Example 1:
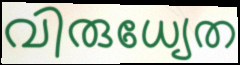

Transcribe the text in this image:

വിരുധ്യേത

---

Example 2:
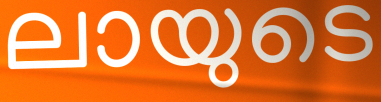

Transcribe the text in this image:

ലായുടെ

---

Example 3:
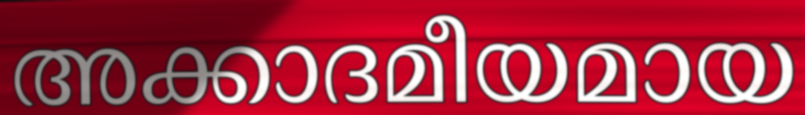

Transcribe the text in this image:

അക്കാദമീയമായ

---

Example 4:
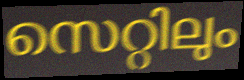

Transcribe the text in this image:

സെറ്റിലും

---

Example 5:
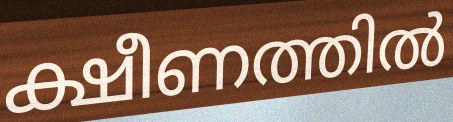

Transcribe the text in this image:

ക്ഷീണത്തിൽ